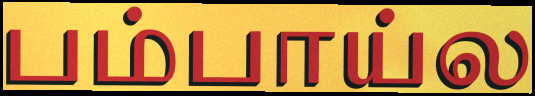
பம்பாய்ல